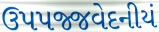
ઉપપજ્જવેદનીયં